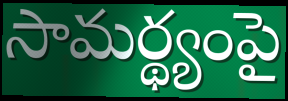
సామర్థ్యంపై